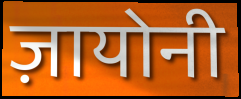
ज़ायोनी